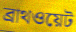
ব্রাথওয়েট